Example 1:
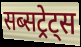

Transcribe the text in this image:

सब्सट्रेट्स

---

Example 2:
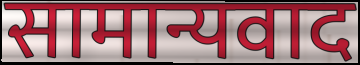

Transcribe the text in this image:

सामान्यवाद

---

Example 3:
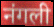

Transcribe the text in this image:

नंगली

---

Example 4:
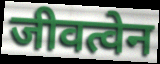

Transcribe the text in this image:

जीवत्वेन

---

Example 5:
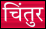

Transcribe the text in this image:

चिंतुर